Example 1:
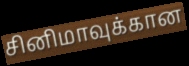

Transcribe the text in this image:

சினிமாவுக்கான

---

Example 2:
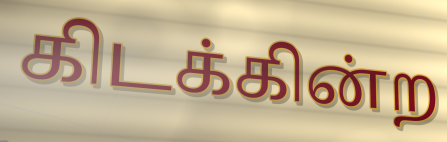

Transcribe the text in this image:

கிடக்கின்ற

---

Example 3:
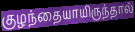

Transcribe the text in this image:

குழந்தையாயிருந்தால்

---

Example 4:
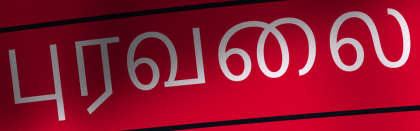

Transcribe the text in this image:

புரவலை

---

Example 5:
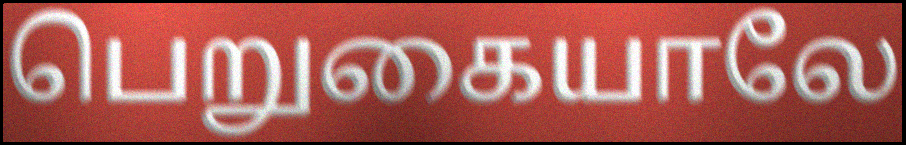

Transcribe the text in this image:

பெறுகையாலே